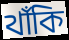
থাঁকি